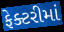
ફેક્ટરીમાં